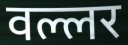
वल्लर